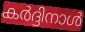
കർദ്ദിനാൾ